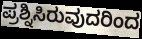
ಪ್ರಶ್ನಿಸಿರುವುದರಿಂದ